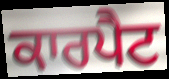
ਕਾਰਪੈਟ